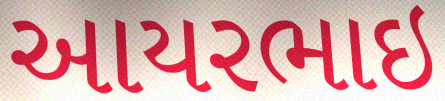
આયરભાઇ